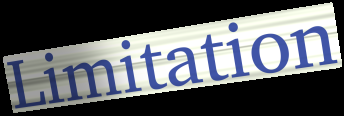
Limitation